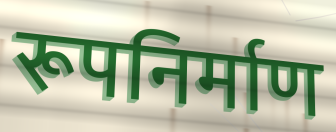
रूपनिर्माण